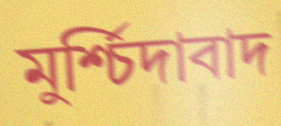
মুৰ্শ্চিদাবাদ